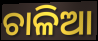
ଚାଳିଆ